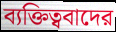
ব্যক্তিত্ববাদের